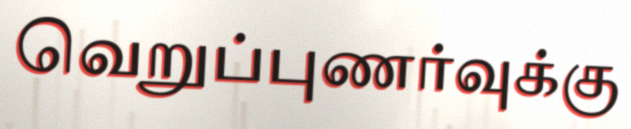
வெறுப்புணர்வுக்கு